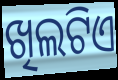
ଖିଲଟିଏ